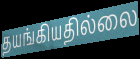
தயங்கியதில்லை